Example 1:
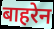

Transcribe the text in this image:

बाहरेन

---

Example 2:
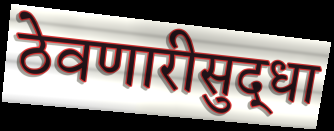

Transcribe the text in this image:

ठेवणारीसुद्धा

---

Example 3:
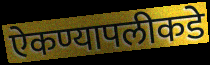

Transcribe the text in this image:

ऐकण्यापलीकडे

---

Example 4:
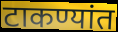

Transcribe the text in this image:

टाकण्यांत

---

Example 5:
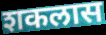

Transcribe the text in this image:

शकलास